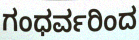
ಗಂಧರ್ವರಿಂದ